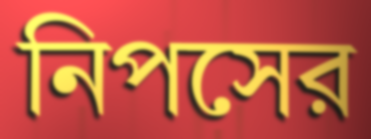
নিপসের